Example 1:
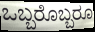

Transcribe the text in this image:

ಒಬ್ಬರೊಬ್ಬರೂ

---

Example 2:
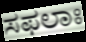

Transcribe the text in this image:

ಸಫಲಾಃ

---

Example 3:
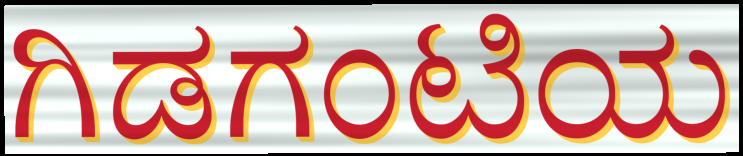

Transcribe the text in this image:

ಗಿಡಗಂಟಿಯ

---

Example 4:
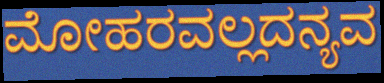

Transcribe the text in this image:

ಮೋಹರವಲ್ಲದನ್ಯವ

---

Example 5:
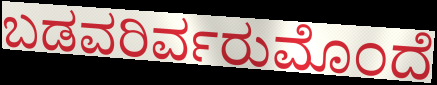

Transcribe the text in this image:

ಬಡವರಿರ್ವರುಮೊಂದೆ